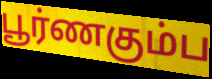
பூர்ணகும்ப